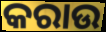
କରାଉ